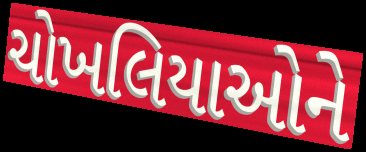
ચોખલિયાઓને